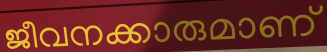
ജീവനക്കാരുമാണ്